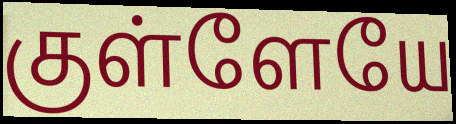
குள்ளேயே